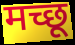
मच्छू